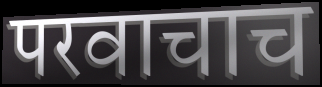
परवाचाच